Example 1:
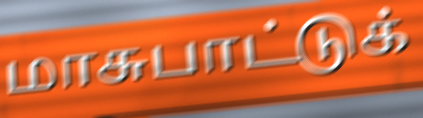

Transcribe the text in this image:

மாசுபாட்டுக்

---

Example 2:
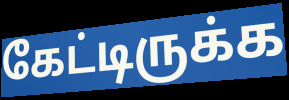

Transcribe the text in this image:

கேட்டிருக்க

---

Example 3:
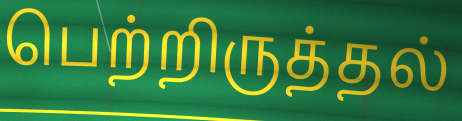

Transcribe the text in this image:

பெற்றிருத்தல்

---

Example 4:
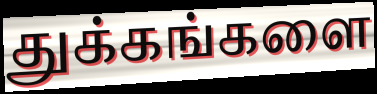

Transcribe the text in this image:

துக்கங்களை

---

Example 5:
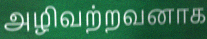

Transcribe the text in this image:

அழிவற்றவனாக